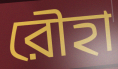
রৌহা